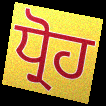
ਧ੍ਰੋਹ